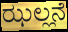
ಝಲ್ಲನೆ